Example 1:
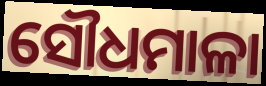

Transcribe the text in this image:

ସୌଧମାଳା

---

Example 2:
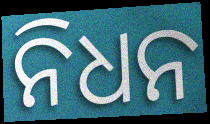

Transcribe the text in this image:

ନିଧନ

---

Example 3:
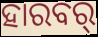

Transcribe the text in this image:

ହାରବର୍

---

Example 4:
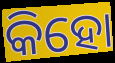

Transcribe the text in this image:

କିହୋ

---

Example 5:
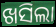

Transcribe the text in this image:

ଖସିଲା